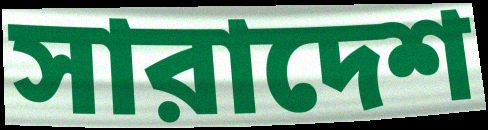
সারাদেশ